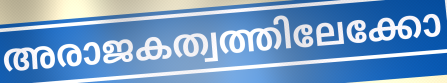
അരാജകത്വത്തിലേക്കോ